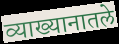
व्याख्यानातले